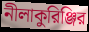
নীলাকুরিঞ্জির